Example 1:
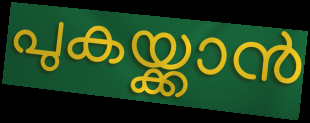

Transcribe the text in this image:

പുകയ്ക്കാൻ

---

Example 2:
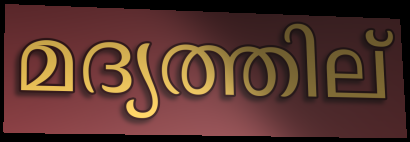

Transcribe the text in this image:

മദ്യത്തില്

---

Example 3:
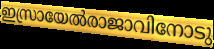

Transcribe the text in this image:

ഇസ്രായേൽരാജാവിനോടു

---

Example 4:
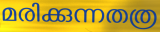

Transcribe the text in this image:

മരിക്കുന്നതത്ര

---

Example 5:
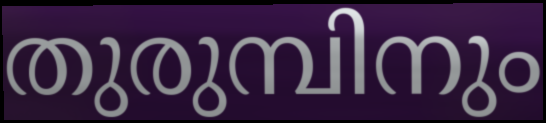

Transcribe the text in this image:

തുരുമ്പിനും